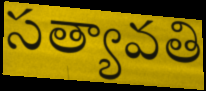
సత్యావతి